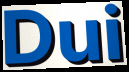
Dui